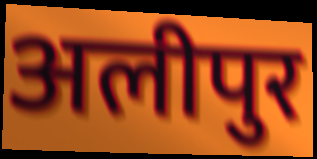
अलीपुर